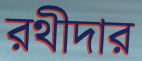
রথীদার